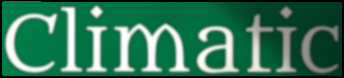
Climatic